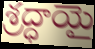
శ్రద్ధాయై